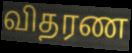
விதரண